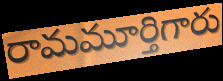
రామమూర్తిగారు